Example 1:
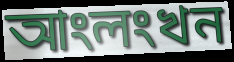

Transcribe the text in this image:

আংলংখন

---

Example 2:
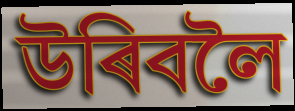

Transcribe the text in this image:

উৰিবলৈ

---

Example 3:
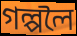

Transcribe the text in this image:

গল্পলৈ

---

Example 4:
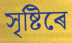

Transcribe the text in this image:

সৃষ্টিৰে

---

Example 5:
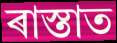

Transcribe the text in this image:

ৰাস্তাত